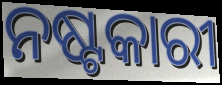
ନଷ୍ଟକାରୀ